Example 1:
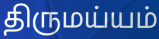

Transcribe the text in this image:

திருமய்யம்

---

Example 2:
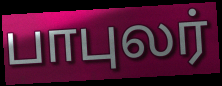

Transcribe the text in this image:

பாபுலர்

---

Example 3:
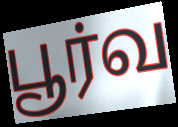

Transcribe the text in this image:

பூர்வ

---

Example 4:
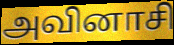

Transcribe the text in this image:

அவினாசி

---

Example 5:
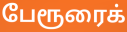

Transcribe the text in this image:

பேரூரைக்